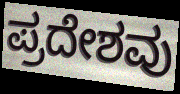
ಪ್ರದೇಶವು